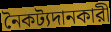
নৈকট্যদানকারী